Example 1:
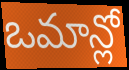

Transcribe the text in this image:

ఒమాన్లో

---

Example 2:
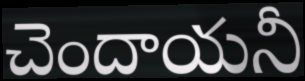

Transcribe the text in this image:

చెందాయనీ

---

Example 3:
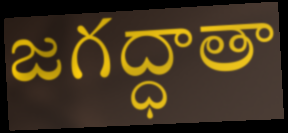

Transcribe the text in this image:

జగద్ధాతా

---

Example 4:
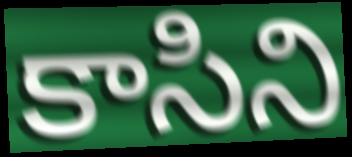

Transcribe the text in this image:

కాసిని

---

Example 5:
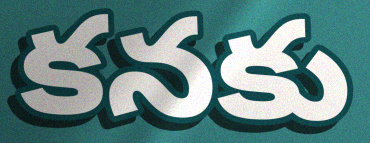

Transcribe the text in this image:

కనకు